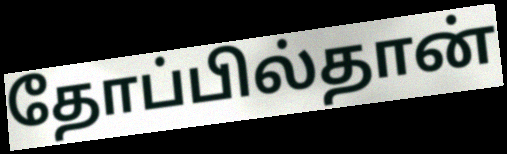
தோப்பில்தான்